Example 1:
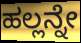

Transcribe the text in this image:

ಹಲ್ಲನ್ನೇ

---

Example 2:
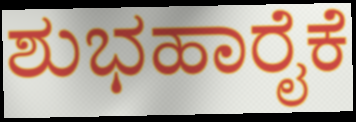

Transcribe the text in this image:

ಶುಭಹಾರೈಕೆ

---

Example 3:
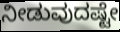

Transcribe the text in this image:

ನೀಡುವುದಷ್ಟೇ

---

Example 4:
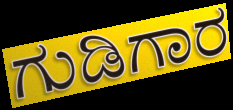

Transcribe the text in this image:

ಗುಡಿಗಾರ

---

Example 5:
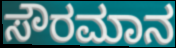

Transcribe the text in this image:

ಸೌರಮಾನ